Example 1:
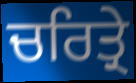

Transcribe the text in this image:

ਚਰਿਤ੍ਰੇ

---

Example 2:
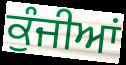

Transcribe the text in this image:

ਕੁੰਜੀਆਂ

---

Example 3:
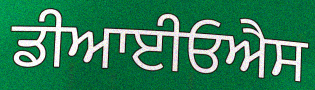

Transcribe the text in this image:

ਡੀਆਈਓਐਸ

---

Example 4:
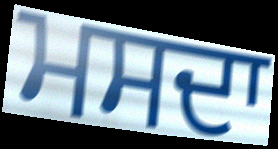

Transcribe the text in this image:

ਮਸਦਾ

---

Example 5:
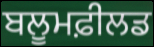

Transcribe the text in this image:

ਬਲੂਮਫ਼ੀਲਡ